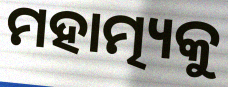
ମହାତ୍ମ୍ୟକୁ